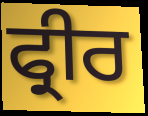
ਫ੍ਰੀਰ